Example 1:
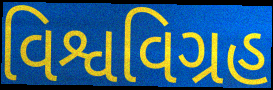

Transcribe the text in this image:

વિશ્વવિગ્રહ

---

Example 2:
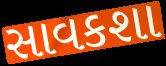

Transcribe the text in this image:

સાવકશા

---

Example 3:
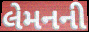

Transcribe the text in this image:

લેમનની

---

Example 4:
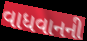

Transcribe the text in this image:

વાધવાનની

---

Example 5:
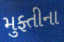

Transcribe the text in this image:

મુફ્તીના